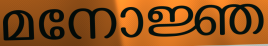
മനോജ്ഞ